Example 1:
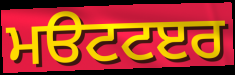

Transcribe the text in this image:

ਮੳਟਟੲਰ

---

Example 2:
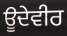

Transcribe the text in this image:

ਊਦੇਵੀਰ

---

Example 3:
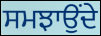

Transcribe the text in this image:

ਸਮਝਾਉੰਦੇ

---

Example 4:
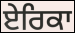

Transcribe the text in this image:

ਏਰਿਕਾ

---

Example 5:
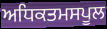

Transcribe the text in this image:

ਅਧਿਕਤਮਸਪੂਲ